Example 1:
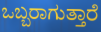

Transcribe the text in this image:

ಒಬ್ಬರಾಗುತ್ತಾರೆ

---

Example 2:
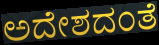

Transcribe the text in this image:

ಅದೇಶದಂತೆ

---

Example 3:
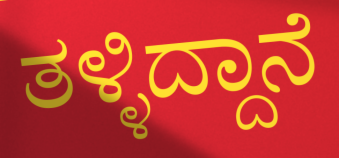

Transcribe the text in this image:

ತಳ್ಳಿದ್ದಾನೆ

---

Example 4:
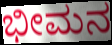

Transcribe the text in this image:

ಭೀಮನ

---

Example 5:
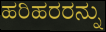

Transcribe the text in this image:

ಹರಿಹರರನ್ನು